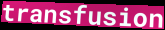
transfusion